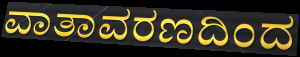
ವಾತಾವರಣದಿಂದ